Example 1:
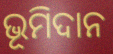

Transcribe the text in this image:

ଭୂମିଦାନ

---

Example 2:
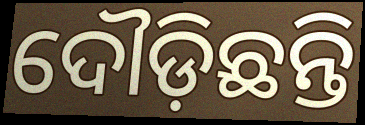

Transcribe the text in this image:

ଦୌଡ଼ିଛନ୍ତି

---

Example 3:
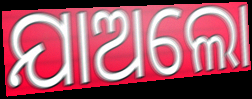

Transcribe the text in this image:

ଯାଅଲୋ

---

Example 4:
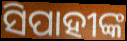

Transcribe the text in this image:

ସିପାହୀଙ୍କ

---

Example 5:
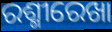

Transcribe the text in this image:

ରଶ୍ମୀରେଖା